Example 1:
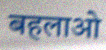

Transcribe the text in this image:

बहलाओ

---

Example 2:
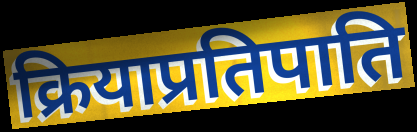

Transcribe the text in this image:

क्रियाप्रतिपाति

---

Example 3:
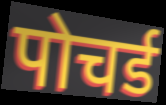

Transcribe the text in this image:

पोचर्ड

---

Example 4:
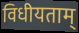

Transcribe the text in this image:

विधीयताम्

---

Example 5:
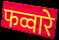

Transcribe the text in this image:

फव्‍वारे